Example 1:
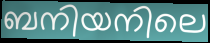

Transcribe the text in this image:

ബനിയനിലെ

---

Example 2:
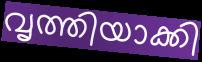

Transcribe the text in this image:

വൃത്തിയാക്കി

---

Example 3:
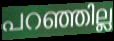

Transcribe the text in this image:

പറഞ്ഞില്ല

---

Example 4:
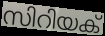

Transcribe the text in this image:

സിറിയക്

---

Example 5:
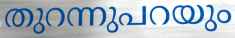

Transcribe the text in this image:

തുറന്നുപറയും